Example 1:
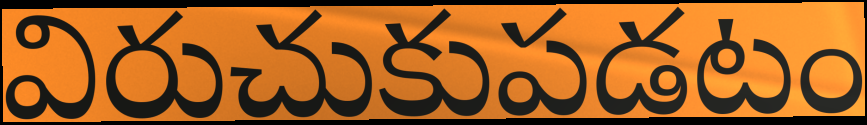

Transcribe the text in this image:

విరుచుకుపడటం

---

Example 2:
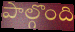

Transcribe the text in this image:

పాల్గొంది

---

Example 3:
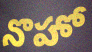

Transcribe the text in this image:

నొహో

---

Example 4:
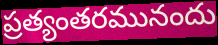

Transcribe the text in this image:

ప్రత్యంతరమునందు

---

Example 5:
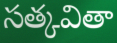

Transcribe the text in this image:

సత్కవితా